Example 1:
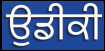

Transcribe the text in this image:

ਉਡੀਕੀ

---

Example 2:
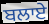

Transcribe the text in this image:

ਬਲਾਏ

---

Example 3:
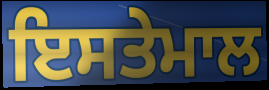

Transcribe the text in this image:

ਇਸਤੇਮਾਲ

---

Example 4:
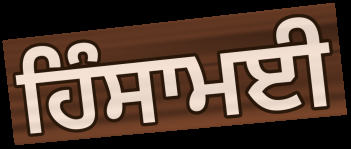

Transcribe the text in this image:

ਹਿੰਸਾਮਈ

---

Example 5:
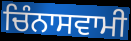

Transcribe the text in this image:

ਚਿੰਨਾਸਵਾਮੀ